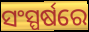
ସଂସ୍ପର୍ଷରେ